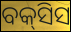
ବକ୍‍ସିସ